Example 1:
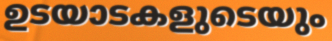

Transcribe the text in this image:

ഉടയാടകളുടെയും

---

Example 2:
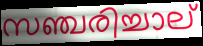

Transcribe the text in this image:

സഞ്ചരിച്ചാല്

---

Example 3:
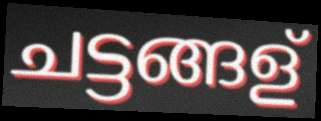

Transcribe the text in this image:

ചട്ടങ്ങള്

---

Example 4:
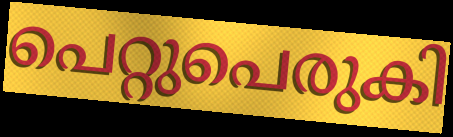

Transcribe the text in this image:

പെറ്റുപെരുകി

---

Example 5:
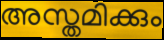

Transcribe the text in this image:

അസ്തമിക്കും